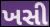
ખસી